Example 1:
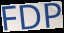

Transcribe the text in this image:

FDP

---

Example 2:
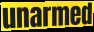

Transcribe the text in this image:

unarmed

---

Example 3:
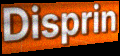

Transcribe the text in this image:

Disprin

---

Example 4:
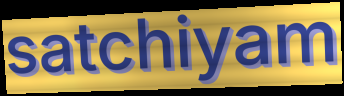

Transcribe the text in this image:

satchiyam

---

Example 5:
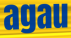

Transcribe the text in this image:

agau